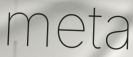
meta